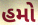
હમો